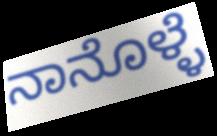
ನಾನೊಳ್ಳೆ